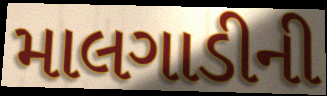
માલગાડીની